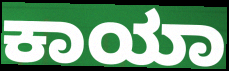
ಕಾಯಾ